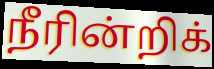
நீரின்றிக்